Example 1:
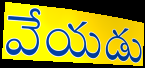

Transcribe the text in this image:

వేయడు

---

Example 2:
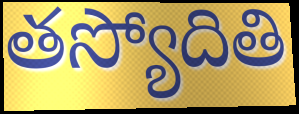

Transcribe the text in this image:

తస్యోదితి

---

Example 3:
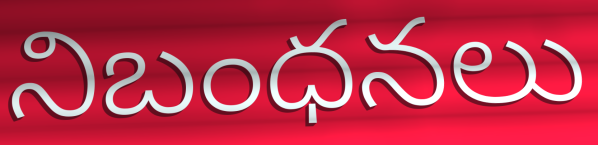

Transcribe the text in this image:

నిబంధనలు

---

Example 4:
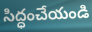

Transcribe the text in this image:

సిద్ధంచేయండి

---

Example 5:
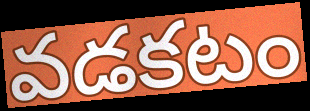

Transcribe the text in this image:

వడకటం